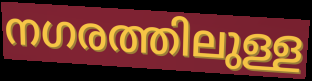
നഗരത്തിലുള്ള